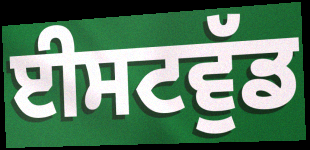
ਈਸਟਵੁੱਡ